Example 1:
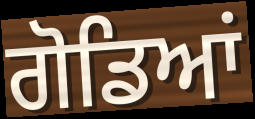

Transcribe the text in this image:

ਗੋਡਿਆਂ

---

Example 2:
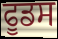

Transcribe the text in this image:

ਫੂਡਸ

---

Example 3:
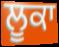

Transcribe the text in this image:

ਲੂਕਾ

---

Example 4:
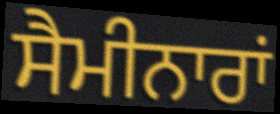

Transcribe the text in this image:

ਸੈਮੀਨਾਰਾਂ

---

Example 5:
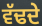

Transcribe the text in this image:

ਵੱਢਦੇ